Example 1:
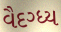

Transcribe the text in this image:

વૈદગ્ધ્ય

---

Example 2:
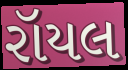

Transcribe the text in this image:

રૉયલ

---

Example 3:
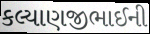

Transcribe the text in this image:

કલ્યાણજીભાઈની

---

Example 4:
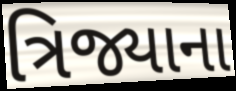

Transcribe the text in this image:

ત્રિજ્યાના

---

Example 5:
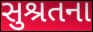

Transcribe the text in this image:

સુશ્રતના